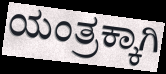
ಯಂತ್ರಕ್ಕಾಗಿ